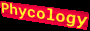
Phycology